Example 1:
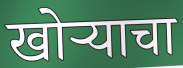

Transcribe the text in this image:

खोर्‍याचा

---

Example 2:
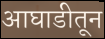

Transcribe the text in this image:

आघाडीतून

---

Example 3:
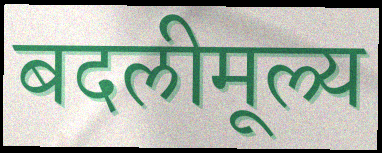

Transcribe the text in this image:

बदलीमूल्य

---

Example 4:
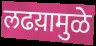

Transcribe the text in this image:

लढय़ामुळे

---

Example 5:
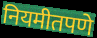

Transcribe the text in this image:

नियमीतपणे